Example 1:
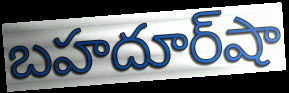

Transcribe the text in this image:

బహదూర్‌షా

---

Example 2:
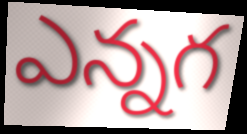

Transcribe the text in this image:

ఎన్నగ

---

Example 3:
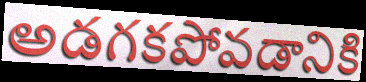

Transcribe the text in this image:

అడగకపోవడానికి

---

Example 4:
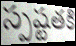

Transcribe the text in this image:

స్పష్టతకి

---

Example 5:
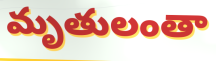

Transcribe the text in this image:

మృతులంతా